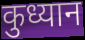
कुध्यान